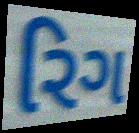
રિગ